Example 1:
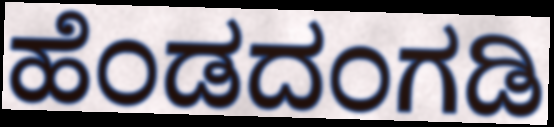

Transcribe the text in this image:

ಹೆಂಡದಂಗಡಿ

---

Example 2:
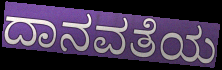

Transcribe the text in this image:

ದಾನವತೆಯ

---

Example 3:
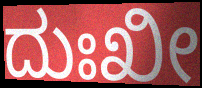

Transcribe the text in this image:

ದುಃಖೀ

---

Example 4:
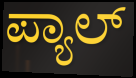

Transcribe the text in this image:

ಪ್ಯಾಲ್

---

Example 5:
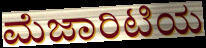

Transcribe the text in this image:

ಮೆಜಾರಿಟಿಯ